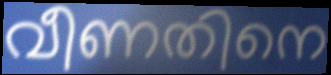
വീണതിനെ